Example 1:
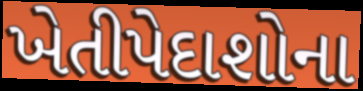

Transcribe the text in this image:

ખેતીપેદાશોના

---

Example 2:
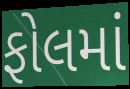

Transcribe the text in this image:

ફોલમાં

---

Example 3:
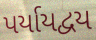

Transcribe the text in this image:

પર્યાયદ્વય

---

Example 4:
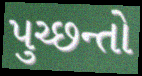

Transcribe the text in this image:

પુચ્છન્તો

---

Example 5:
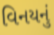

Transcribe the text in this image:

વિનયનું